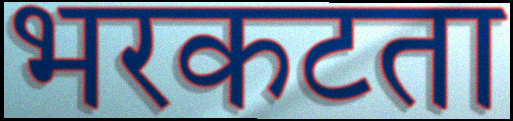
भरकटता